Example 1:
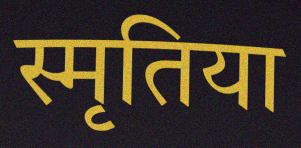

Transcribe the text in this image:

स्मृतिया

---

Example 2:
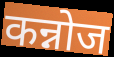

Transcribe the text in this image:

कन्नोज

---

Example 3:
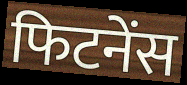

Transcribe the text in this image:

फिटनेंस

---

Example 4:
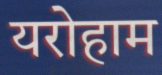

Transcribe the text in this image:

यरोहाम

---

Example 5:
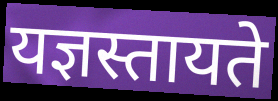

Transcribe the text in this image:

यज्ञस्तायते